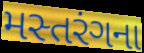
મસ્તરંગના